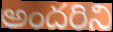
అందరిని